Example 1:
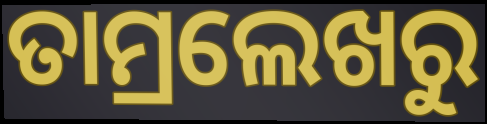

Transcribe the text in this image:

ତାମ୍ରଲେଖରୁ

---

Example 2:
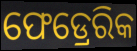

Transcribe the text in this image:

ଫେଡ୍ରେରିକ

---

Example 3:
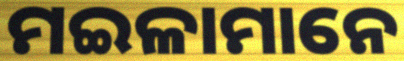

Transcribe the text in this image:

ମଇଳାମାନେ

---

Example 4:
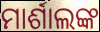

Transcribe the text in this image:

ମାର୍ଶାଲଙ୍କ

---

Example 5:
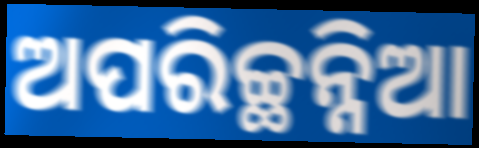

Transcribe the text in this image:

ଅପରିଚ୍ଛନ୍ନିଆ